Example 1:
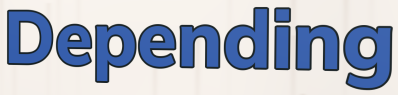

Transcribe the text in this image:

Depending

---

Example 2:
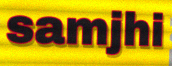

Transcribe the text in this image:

samjhi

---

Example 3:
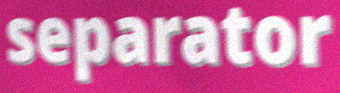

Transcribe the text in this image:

separator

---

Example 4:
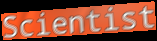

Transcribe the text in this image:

Scientist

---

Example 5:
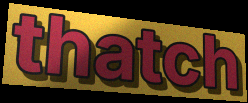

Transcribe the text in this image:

thatch